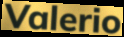
Valerio